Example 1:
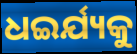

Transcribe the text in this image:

ଧଇର୍ଯ୍ୟକୁ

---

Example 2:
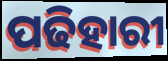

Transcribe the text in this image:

ପଢିହାରୀ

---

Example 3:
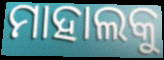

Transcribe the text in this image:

ମାହାଲକୁ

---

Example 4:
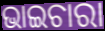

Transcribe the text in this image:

ଭାଇଚାରା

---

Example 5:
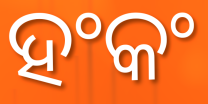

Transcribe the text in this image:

ହଂକଂ